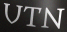
UTN